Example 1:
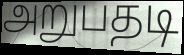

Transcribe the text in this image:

அறுபதடி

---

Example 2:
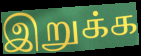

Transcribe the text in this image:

இறுக்க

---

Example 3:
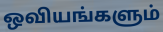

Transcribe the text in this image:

ஒவியங்களும்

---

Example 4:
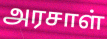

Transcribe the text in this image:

அரசாள்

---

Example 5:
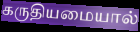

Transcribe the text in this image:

கருதியமையால்